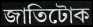
জাতিটোক